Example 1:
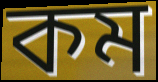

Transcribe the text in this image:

কম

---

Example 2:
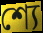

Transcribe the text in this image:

শ্যে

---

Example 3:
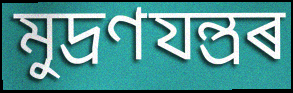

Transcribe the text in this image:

মুদ্ৰণযন্ত্ৰৰ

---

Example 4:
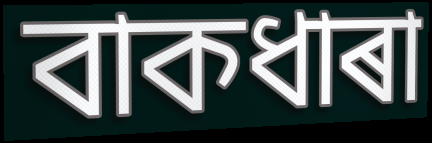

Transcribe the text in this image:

বাকধাৰা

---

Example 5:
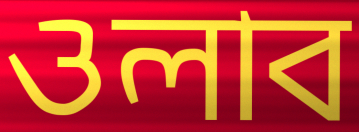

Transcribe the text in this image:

ওলাব